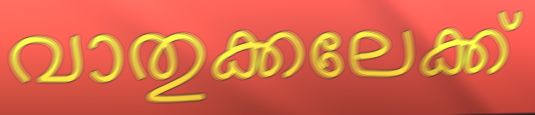
വാതുക്കലേക്ക്